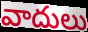
వాదులు